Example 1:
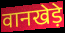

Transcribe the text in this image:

वानखेड़े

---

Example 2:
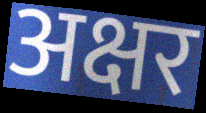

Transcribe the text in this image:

अक्षर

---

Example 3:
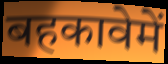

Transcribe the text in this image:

बहकावेमें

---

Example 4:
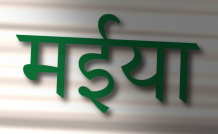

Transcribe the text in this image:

मईया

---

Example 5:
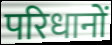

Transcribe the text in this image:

परिधानों